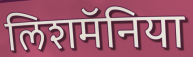
लिशमॅनिया